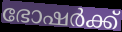
ഭോഷർക്ക്